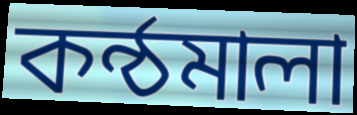
কন্ঠমালা